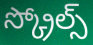
స్క్రోల్స్